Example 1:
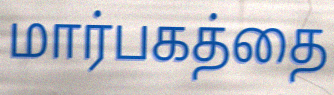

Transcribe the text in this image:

மார்பகத்தை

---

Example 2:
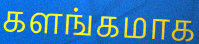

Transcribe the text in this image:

களங்கமாக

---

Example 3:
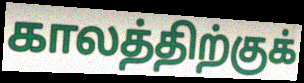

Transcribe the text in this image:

காலத்திற்குக்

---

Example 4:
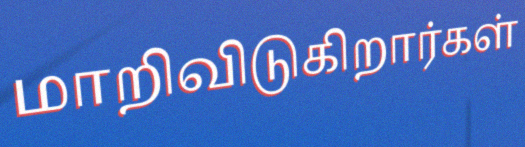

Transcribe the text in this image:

மாறிவிடுகிறார்கள்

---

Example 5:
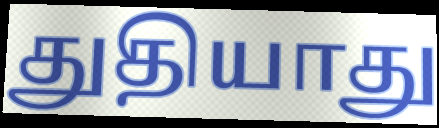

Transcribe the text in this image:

துதியாது